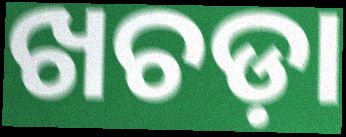
ଖଚଡ଼ା